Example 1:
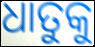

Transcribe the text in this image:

ଧାତୁକୁ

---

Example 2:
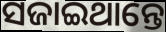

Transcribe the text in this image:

ସଜାଇଥାନ୍ତେ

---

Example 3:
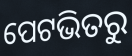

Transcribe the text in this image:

ପେଟଭିତରୁ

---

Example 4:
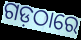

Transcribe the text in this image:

ଗଡ଼ଠାରେ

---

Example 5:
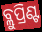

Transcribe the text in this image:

ବ୍ଲୁପ୍ରିଣ୍ଟ